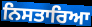
ਨਿਸਤਾਰਿਆ